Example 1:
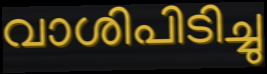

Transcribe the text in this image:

വാശിപിടിച്ചു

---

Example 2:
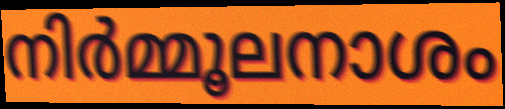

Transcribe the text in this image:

നിർമ്മൂലനാശം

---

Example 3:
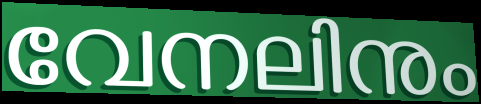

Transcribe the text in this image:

വേനലിനും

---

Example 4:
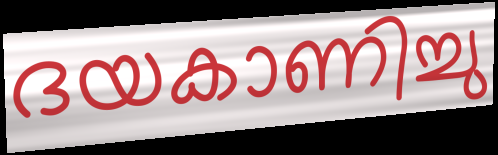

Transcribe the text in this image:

ദയകാണിച്ചു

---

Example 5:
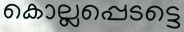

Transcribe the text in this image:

കൊല്ലപ്പെടട്ടെ